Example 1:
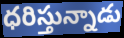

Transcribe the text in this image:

ధరిస్తున్నాడు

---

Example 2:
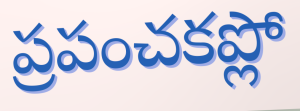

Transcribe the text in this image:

ప్రపంచకప్లో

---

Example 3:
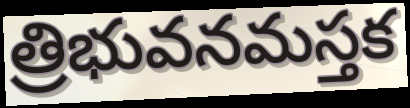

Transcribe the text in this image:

త్రిభువనమస్తక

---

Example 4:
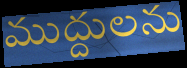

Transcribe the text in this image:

ముద్దులను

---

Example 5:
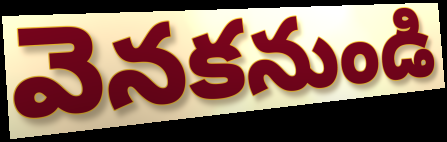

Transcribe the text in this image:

వెనకనుండి